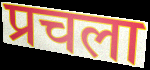
प्रचला